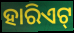
ହାରିଏଟ୍